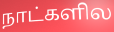
நாட்களில